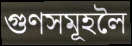
গুণসমূহলৈ